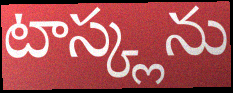
టాస్క్లను